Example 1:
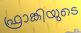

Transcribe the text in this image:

ഫ്രാങ്കിയുടെ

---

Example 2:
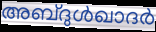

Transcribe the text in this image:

അബ്ദുൾഖാദർ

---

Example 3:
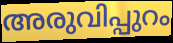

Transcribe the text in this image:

അരുവിപ്പുറം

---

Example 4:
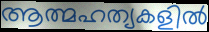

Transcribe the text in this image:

ആത്മഹത്യകളിൽ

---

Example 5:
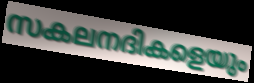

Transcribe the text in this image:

സകലനദികളെയും